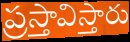
ప్రస్తావిస్తారు